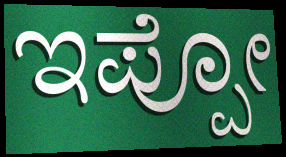
ಇಪ್ಪೋ